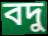
বদু